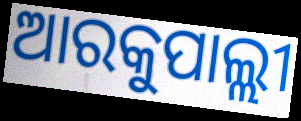
ଆରକୁପାଲ୍ଲୀ